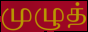
முழுத்